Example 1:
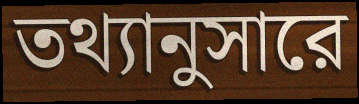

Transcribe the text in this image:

তথ্যানুসারে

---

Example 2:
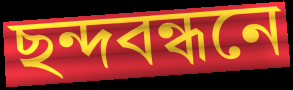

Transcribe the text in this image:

ছন্দবন্ধনে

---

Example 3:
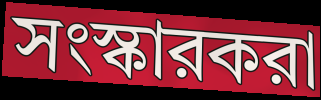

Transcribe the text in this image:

সংস্কারকরা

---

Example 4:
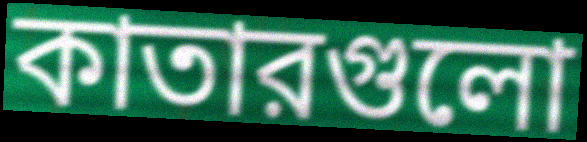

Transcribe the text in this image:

কাতারগুলো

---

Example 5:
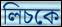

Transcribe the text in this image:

লিচকে